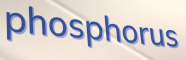
phosphorus